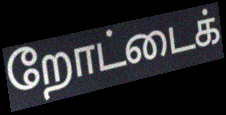
றோட்டைக்